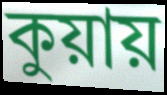
কুয়ায়